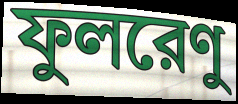
ফুলরেণু